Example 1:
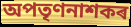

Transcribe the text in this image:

অপতৃণনাশকৰ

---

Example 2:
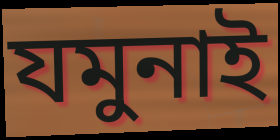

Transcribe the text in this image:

যমুনাই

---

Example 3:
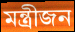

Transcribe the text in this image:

মন্ত্ৰীজন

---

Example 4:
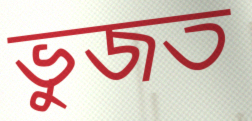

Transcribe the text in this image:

ভুজত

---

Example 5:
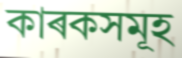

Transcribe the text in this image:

কাৰকসমূহ